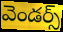
వెండర్స్